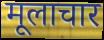
मूलाचार